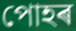
পোহৰ